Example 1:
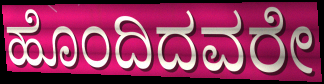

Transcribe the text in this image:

ಹೊಂದಿದವರೇ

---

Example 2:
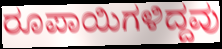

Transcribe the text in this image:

ರೂಪಾಯಿಗಳಿದ್ದವು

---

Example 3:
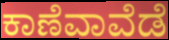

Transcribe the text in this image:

ಕಾಣೆವಾವೆಡೆ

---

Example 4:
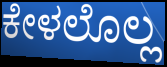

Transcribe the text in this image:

ಕೇಳಲೊಲ್ಲ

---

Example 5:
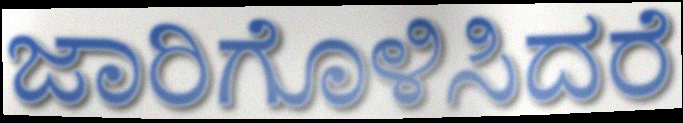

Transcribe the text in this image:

ಜಾರಿಗೊಳಿಸಿದರೆ